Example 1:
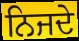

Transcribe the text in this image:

ਨਿਜਦੇ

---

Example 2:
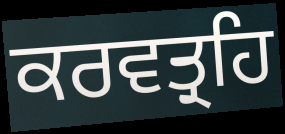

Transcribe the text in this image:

ਕਰਵਤ੍ਰਹਿ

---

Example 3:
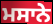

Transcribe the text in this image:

ਮਸਾਨੇ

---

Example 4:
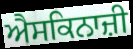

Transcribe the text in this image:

ਐਸਕਿਨਾਜ਼ੀ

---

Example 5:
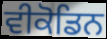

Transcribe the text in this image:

ਵੀਕੋਡਿਨ